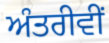
ਅੰਤਰੀਵੀਂ